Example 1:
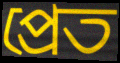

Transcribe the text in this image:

প্রেত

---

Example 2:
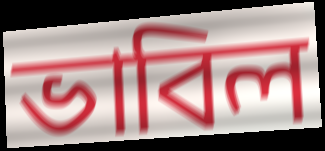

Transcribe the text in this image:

ভাবিল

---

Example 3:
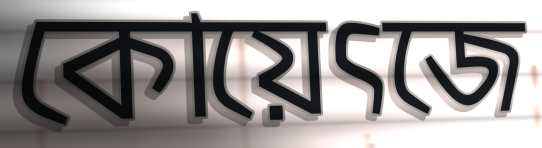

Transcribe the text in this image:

কোয়েৎজে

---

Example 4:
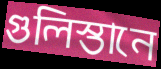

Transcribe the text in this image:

গুলিস্তানে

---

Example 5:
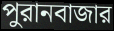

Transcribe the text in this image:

পুরানবাজার